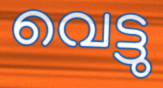
വെട്ടു